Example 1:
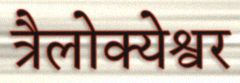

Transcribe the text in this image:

त्रैलोक्येश्वर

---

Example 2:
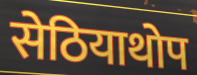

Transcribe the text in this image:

सेठियाथोप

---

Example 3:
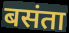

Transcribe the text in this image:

बसंता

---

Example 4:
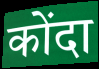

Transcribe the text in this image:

कोंदा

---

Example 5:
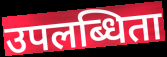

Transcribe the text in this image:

उपलब्धिता